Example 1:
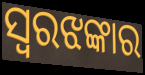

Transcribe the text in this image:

ସ୍ୱରଝଙ୍କାର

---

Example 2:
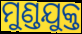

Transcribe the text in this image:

ମୁଣ୍ଡଯୁକ୍ତ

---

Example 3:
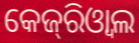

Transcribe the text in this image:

କେଜ୍‌ରିଓ୍ବାଲ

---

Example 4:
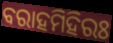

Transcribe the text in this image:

ବରାହମିହିରଃ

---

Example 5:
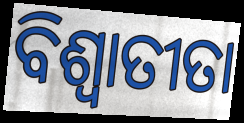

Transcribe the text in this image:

ବିଶ୍ଵାତୀତା